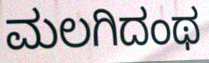
ಮಲಗಿದಂಥ